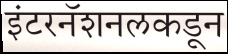
इंटरनॅशनलकडून